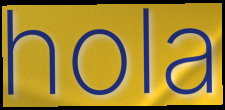
hola